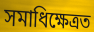
সমাধিক্ষেত্ৰত